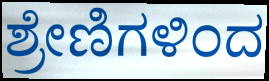
ಶ್ರೇಣಿಗಳಿಂದ